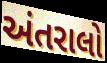
અંતરાલો